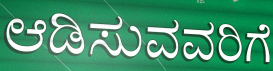
ಆಡಿಸುವವರಿಗೆ